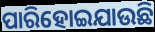
ପାରିହୋଇଯାଉଛି